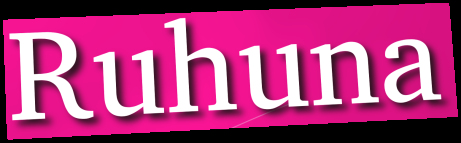
Ruhuna